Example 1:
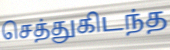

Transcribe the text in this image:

செத்துகிடந்த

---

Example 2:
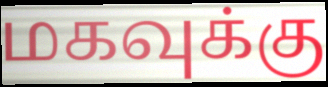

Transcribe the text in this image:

மகவுக்கு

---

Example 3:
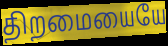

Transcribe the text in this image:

திறமையையே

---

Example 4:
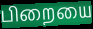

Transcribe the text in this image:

பிறையை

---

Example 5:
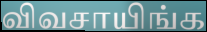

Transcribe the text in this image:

விவசாயிங்க